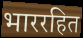
भाररहित